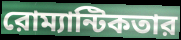
রোম্যান্টিকতার